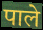
पाले